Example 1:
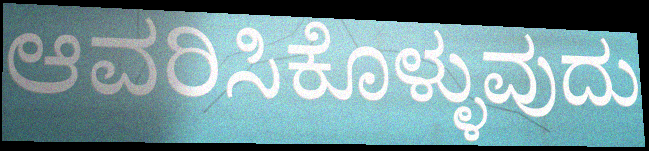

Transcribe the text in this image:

ಆವರಿಸಿಕೊಳ್ಳುವುದು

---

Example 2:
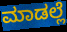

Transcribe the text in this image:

ಮಾಡಲ್ಲೆ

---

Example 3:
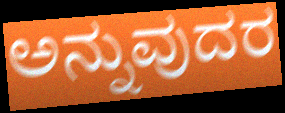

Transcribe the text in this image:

ಅನ್ನುವುದರ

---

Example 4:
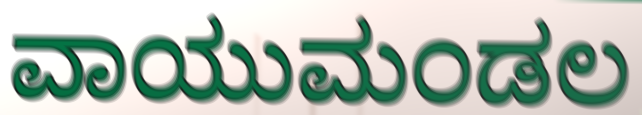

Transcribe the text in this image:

ವಾಯುಮಂಡಲ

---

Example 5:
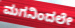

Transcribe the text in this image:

ಮಗನಿಂದಲೇ